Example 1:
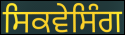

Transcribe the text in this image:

ਸਿਕਵੇਸਿੰਗ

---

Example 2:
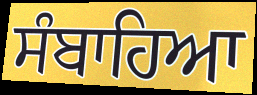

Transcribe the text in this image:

ਸੰਬਾਹਿਆ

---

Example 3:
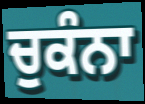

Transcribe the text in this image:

ਚੁਕੰਨਾ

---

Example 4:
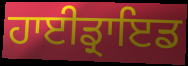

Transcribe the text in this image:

ਹਾਈਡ੍ਰਾਇਡ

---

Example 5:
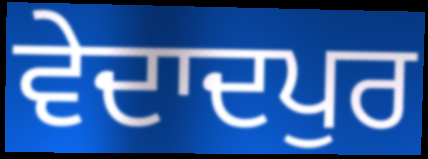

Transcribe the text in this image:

ਵੇਦਾਦਪੁਰ